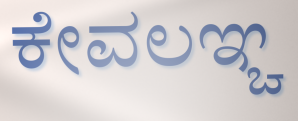
ಕೇವಲಞ್ಚ